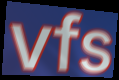
vfs